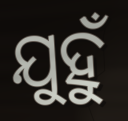
ଯୁହୁଁ